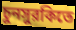
চুনসুরকিতে